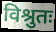
विश्रुतः